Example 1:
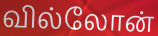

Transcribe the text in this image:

வில்லோன்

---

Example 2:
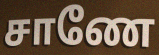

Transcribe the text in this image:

சாணே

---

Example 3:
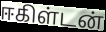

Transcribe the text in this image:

ஈகிள்டன்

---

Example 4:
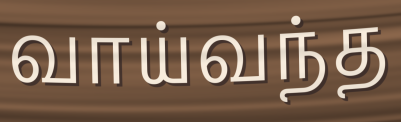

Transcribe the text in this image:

வாய்வந்த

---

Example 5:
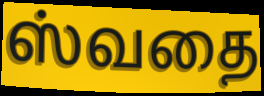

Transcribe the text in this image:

ஸ்வதை